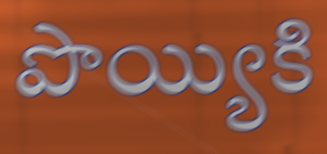
పొయ్యికి